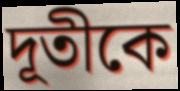
দূতীকে